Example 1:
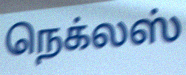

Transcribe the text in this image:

நெக்லஸ்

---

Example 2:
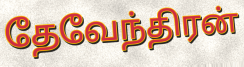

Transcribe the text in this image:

தேவேந்திரன்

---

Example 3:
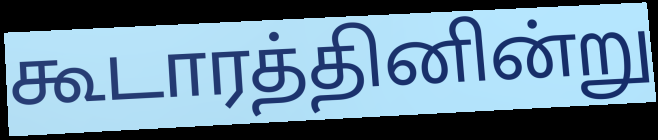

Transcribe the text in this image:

கூடாரத்தினின்று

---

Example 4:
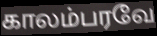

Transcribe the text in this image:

காலம்பரவே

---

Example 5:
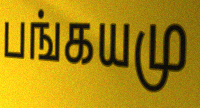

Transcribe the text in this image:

பங்கயமு